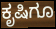
ಕೃಷಿಗೂ